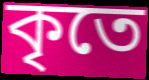
কৃতে